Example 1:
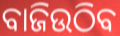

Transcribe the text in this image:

ବାଜିଉଠିବ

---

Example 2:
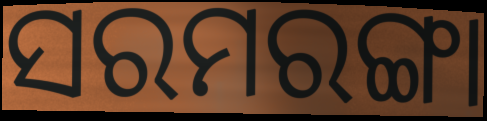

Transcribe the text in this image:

ସରମରଙ୍ଗା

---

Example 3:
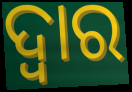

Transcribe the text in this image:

ଦ୍ବାର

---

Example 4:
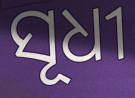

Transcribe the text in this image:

ସୂଧୀ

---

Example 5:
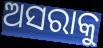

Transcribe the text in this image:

ଅସରାକୁ